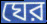
ঘের